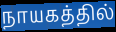
நாயகத்தில்